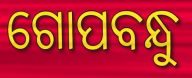
ଗୋପବନ୍ଧୁ